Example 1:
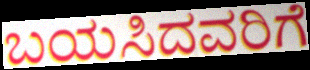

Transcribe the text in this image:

ಬಯಸಿದವರಿಗೆ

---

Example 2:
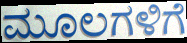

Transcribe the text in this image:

ಮೂಲಗಳಿಗೆ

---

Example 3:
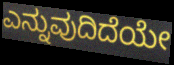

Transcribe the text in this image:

ಎನ್ನುವುದಿದೆಯೇ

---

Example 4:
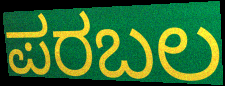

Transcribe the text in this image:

ಪರಬಲ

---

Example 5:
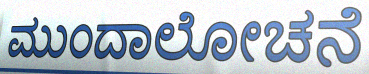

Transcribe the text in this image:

ಮುಂದಾಲೋಚನೆ